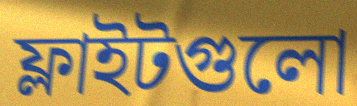
ফ্লাইটগুলো